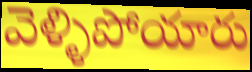
వెళ్ళిపోయారు